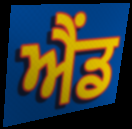
ਐੰਡ